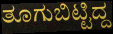
ತೂಗುಬಿಟ್ಟಿದ್ದ